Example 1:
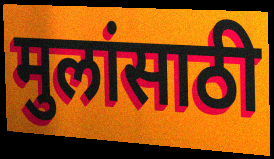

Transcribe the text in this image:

मुलांसाठी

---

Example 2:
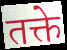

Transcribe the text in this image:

तक्ते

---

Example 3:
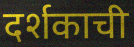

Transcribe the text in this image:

दर्शकाची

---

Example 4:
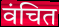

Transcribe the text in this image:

वंचित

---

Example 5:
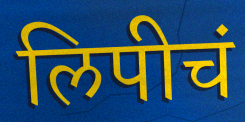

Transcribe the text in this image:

लिपीचं